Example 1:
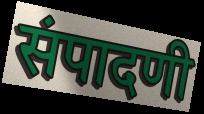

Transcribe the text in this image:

संपादणी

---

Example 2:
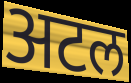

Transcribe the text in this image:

अटल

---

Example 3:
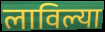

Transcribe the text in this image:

लाविल्या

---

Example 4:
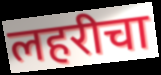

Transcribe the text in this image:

लहरीचा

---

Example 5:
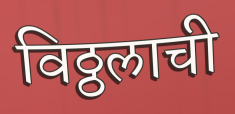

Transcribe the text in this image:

विठ्ठलाची